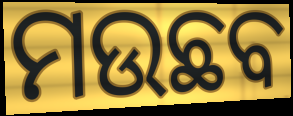
ମଉଛବ